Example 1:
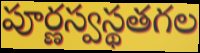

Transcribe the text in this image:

పూర్ణస్వస్థతగల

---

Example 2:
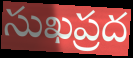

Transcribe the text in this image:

సుఖప్రద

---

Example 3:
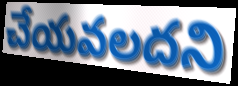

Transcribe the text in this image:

చేయవలదని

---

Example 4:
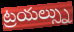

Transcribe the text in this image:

ట్రయల్స్ను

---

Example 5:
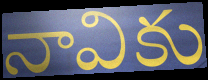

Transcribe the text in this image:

నావికు